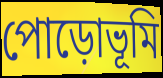
পোড়োভূমি